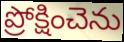
ప్రోక్షించెను